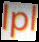
Ipl